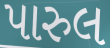
પારુલ